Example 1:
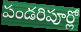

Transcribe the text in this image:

పండరిపూర్లో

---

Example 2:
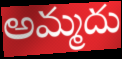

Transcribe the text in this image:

అమ్మదు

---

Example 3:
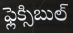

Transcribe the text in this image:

ఫ్లెక్సిబుల్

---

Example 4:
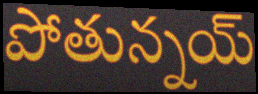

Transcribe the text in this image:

పోతున్నయ్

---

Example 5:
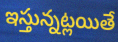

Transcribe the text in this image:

ఇస్తున్నట్లయితే